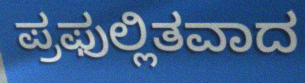
ಪ್ರಫುಲ್ಲಿತವಾದ